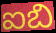
ఐబి